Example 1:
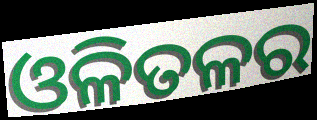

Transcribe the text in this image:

ଓଳିତଳର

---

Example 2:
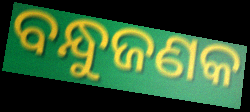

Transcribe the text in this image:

ବନ୍ଧୁଜଣକ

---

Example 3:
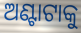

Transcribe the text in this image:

ଅଣ୍ଟାଟାକୁ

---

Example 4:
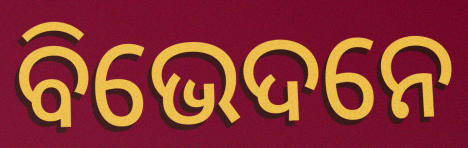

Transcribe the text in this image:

ବିଭେଦନେ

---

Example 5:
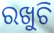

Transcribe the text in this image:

ରଖୁଚି